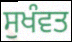
ਸੁਖੰਵਤ